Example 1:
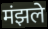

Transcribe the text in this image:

मंझले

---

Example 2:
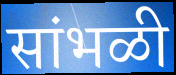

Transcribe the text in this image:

सांभळी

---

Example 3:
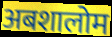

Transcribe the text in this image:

अबशालोम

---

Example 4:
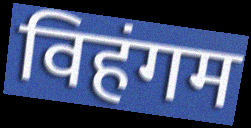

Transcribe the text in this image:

विहंगम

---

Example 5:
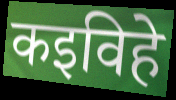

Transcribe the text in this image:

कइविहे